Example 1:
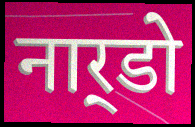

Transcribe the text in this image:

नार्डो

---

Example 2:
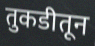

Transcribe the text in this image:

तुकडीतून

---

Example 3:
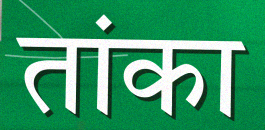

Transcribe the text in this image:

तांका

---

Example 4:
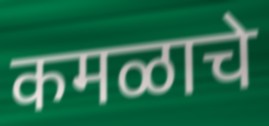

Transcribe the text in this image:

कमळाचे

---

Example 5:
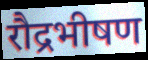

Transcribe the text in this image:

रौद्रभीषण